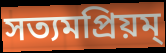
সত্যমপ্রিয়ম্